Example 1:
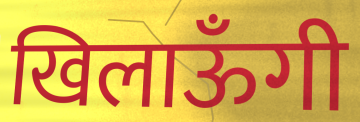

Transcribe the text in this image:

खिलाऊँगी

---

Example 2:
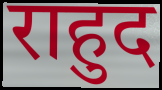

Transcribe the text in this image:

राहुद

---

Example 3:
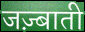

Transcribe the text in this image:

जज़्बाती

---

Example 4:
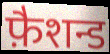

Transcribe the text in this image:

फ़ैशन्ड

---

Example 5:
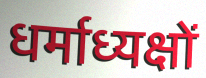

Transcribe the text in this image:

धर्माध्यक्षों